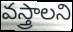
వస్త్రాలని